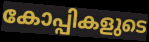
കോപ്പികളുടെ